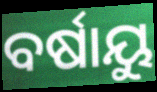
ବର୍ଷାୟୁ